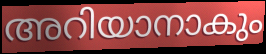
അറിയാനാകും